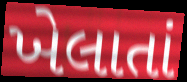
ખેલાતાં